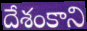
దేశంకాని